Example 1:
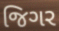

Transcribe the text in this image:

જિગર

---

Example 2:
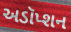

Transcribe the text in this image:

અડૉપ્શન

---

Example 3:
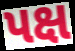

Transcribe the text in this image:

પક્ષ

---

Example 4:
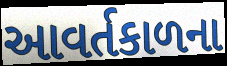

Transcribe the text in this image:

આવર્તકાળના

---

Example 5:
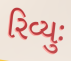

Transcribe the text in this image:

રિવ્યુઃ